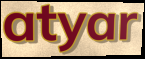
atyar